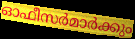
ഓഫീസർമാർക്കും